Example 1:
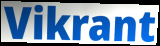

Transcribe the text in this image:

Vikrant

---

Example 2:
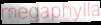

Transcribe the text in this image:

megaphylla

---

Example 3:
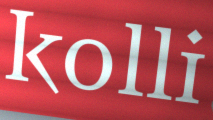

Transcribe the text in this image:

kolli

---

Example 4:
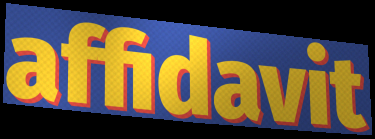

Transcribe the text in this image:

affidavit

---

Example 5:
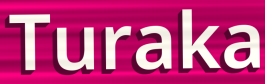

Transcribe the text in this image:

Turaka